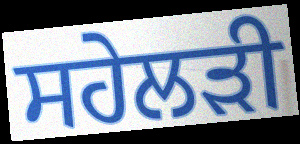
ਸਹੇਲੜੀ